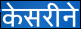
केसरीने